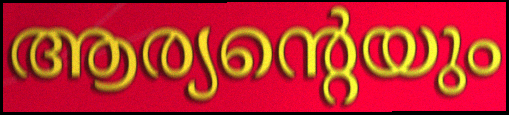
ആര്യന്റെയും